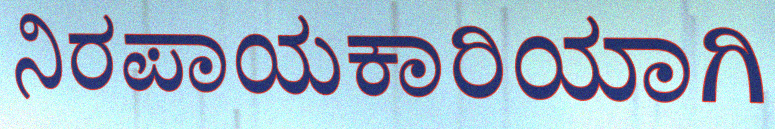
ನಿರಪಾಯಕಾರಿಯಾಗಿ